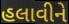
હલાવીને